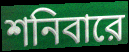
শনিবারে